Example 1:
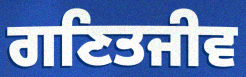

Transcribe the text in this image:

ਗਣਿਤਜੀਵ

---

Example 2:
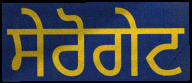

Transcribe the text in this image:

ਸੇਰੋਗੇਟ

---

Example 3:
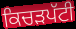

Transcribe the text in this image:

ਕਿਚੜਪੱਟੀ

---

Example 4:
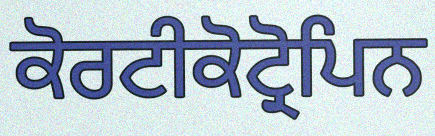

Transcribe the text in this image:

ਕੋਰਟੀਕੋਟ੍ਰੋਪਿਨ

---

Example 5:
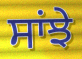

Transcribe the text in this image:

ਸਾਂਝੇ